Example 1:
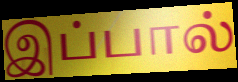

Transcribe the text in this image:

இப்பால்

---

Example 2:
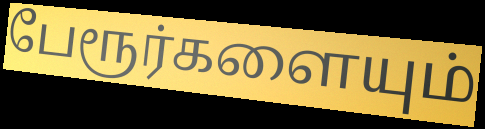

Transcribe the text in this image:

பேரூர்களையும்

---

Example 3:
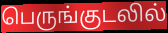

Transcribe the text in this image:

பெருங்குடலில்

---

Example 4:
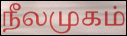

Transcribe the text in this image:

நீலமுகம்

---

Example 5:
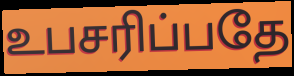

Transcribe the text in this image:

உபசரிப்பதே